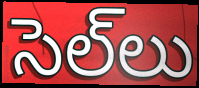
సెల్‌లు